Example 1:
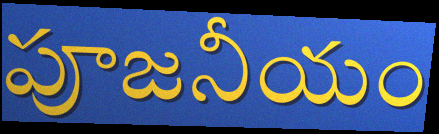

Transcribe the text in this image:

పూజనీయం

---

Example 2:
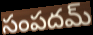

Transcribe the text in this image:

సంపదమ్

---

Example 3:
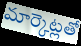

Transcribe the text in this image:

మార్కెట్లతో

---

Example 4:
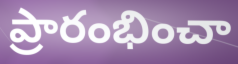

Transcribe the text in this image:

ప్రారంభించా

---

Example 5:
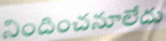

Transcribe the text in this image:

నిందించనూలేదు